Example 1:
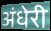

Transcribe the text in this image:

अंधेरी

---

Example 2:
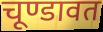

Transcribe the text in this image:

चूण्डावत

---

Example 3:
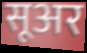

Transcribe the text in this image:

सूअर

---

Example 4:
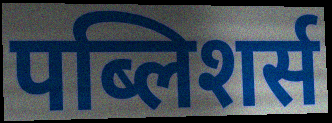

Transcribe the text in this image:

पब्लिशर्स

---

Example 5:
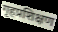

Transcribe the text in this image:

गृहप्रशिक्षण